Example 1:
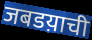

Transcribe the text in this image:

जबडय़ाची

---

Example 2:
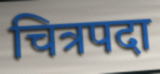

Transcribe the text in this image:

चित्रपदा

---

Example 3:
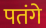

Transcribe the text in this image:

पतंगे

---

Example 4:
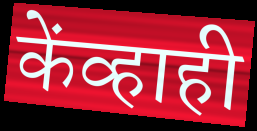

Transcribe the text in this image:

केंव्हाही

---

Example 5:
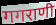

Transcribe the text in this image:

गगराणी